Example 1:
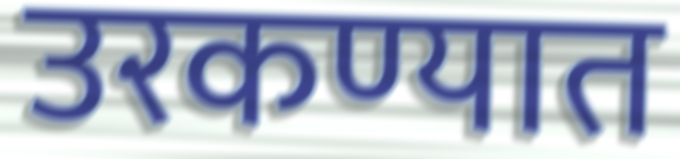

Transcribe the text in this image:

उरकण्यात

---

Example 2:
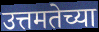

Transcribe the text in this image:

उत्तमतेच्या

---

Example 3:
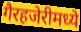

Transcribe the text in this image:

गैरहजेरीमध्ये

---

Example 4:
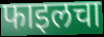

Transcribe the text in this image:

फाइलचा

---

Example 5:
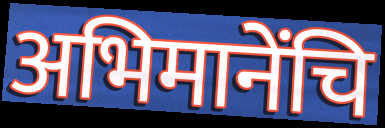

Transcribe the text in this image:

अभिमानेंचि